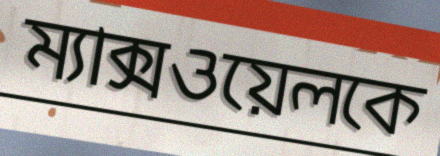
ম্যাক্সওয়েলকে